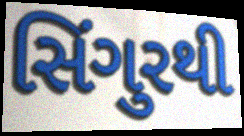
સિંગુરથી